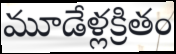
మూడేళ్లక్రితం